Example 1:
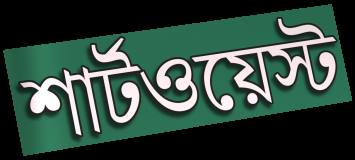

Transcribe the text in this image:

শার্টওয়েস্ট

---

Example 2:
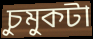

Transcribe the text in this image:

চুমুকটা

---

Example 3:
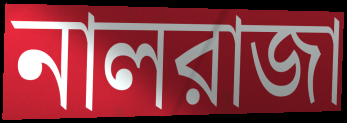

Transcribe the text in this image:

নালরাজা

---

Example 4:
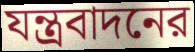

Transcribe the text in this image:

যন্ত্রবাদনের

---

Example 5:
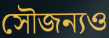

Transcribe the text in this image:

সৌজন্যও